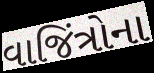
વાજિંત્રોના